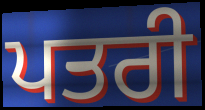
ਪਤਰੀ